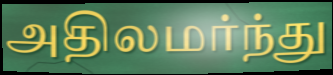
அதிலமர்ந்து